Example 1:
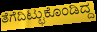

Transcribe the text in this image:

ತೆಗೆದಿಟ್ಟುಕೊಂಡಿದ್ದ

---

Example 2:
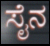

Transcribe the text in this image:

ಸೈನ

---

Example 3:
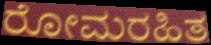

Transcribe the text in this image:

ರೋಮರಹಿತ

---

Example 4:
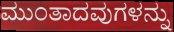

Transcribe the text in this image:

ಮುಂತಾದವುಗಳನ್ನು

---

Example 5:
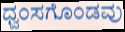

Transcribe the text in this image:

ಧ್ವಂಸಗೊಂಡವು